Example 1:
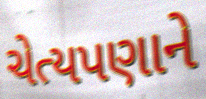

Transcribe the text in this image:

ચેત્યપણાને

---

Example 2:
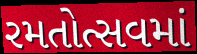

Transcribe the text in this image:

રમતોત્સવમાં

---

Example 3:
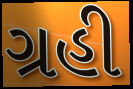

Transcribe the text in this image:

ગ્રહી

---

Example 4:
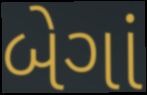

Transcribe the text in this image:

બેગાં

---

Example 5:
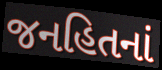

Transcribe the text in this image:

જનહિતનાં